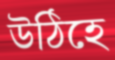
উঠিহে